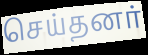
செய்தனர்